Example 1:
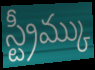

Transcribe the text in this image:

స్ట్రీమ్కు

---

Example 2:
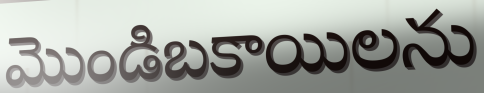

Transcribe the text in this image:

మొండిబకాయిలను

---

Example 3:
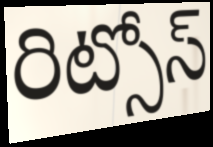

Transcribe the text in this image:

రిట్సోస్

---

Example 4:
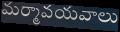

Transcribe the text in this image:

మర్మావయవాలు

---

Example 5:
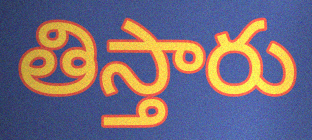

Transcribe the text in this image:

తిస్తారు